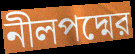
নীলপদ্মের